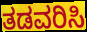
ತಡವರಿಸಿ